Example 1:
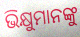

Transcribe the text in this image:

ଭିକ୍ଷୁମାନଙ୍କୁ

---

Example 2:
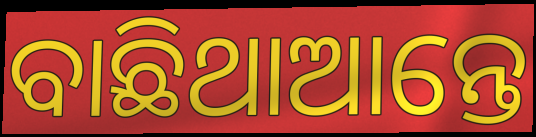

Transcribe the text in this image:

ବାଛିଥାଆନ୍ତେ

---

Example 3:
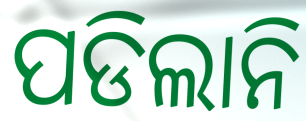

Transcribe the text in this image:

ପଡିଲାନି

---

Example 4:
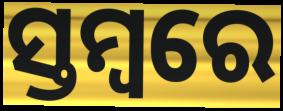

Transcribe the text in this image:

ସ୍ତମ୍ବରେ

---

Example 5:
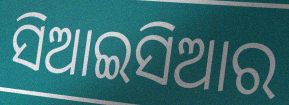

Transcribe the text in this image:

ସିଆଇସିଆର